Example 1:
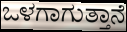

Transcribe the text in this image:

ಒಳಗಾಗುತ್ತಾನೆ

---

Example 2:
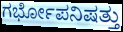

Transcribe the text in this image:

ಗರ್ಭೋಪನಿಷತ್ತು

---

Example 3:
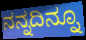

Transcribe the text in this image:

ನನ್ನದಿನ್ನೂ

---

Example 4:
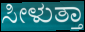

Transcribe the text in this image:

ಸೀಳುತ್ತಾ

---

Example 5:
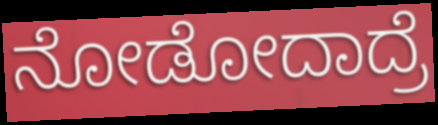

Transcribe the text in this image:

ನೋಡೋದಾದ್ರೆ